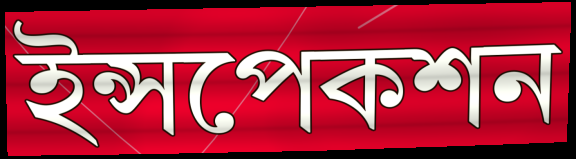
ইন্সপেকশন